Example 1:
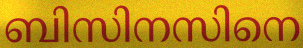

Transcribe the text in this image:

ബിസിനസിനെ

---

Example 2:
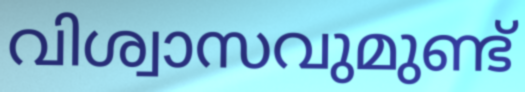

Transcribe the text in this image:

വിശ്വാസവുമുണ്ട്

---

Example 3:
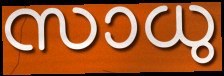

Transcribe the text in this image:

സാധു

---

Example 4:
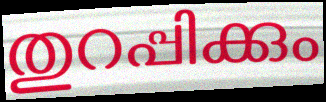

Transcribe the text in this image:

തുറപ്പിക്കും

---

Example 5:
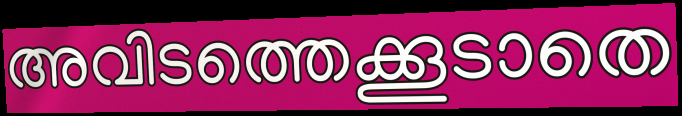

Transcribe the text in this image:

അവിടത്തെക്കൂടാതെ